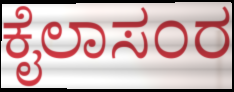
ಕೈಲಾಸಂರ